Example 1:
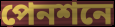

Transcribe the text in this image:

পেনশনে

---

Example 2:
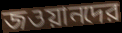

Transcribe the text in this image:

জওয়ানদের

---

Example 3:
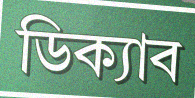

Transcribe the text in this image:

ডিক্যাব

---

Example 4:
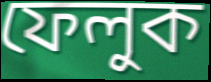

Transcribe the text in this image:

ফেলুক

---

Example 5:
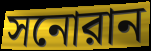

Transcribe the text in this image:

সনোরান